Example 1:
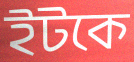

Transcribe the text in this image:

ইটকে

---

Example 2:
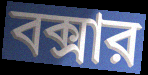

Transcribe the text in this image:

বক্সার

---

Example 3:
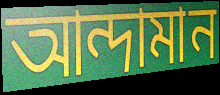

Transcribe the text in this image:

আন্দামান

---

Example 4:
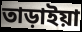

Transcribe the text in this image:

তাড়াইয়া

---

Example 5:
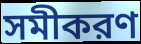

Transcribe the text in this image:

সমীকরণ